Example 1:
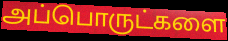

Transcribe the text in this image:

அப்பொருட்களை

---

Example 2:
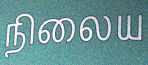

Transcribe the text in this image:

நிலைய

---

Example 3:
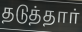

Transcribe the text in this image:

தடுத்தார்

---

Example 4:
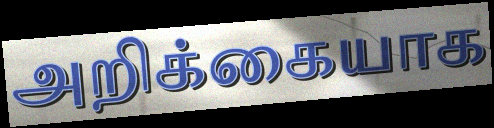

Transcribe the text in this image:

அறிக்கையாக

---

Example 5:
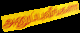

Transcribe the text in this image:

அனுப்புவீங்களா